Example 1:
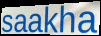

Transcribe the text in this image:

saakha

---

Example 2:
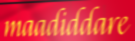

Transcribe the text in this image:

maadiddare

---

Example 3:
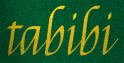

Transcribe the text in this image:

tabibi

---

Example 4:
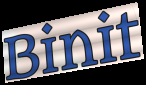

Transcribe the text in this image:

Binit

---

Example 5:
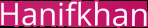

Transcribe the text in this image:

Hanifkhan